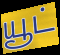
யூட்